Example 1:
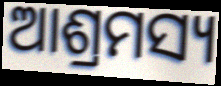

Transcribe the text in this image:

ଆଶ୍ରମସ୍ୟ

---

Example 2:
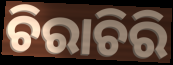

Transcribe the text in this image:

ଚିରାଚିରି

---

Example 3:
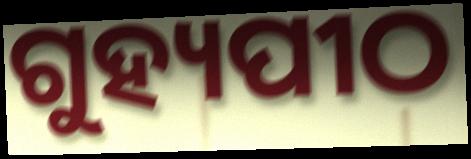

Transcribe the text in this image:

ଗୁହ୍ୟପୀଠ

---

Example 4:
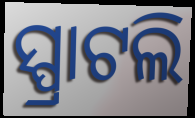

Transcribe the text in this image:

ସ୍ପ୍ରାଟଲି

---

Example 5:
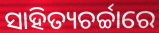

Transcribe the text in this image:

ସାହିତ୍ୟଚର୍ଚ୍ଚାରେ